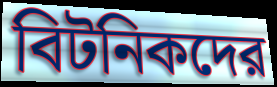
বিটনিকদের